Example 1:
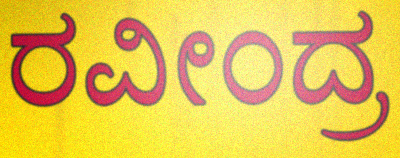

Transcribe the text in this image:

ರವೀಂದ್ರ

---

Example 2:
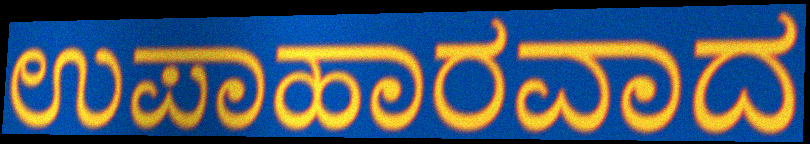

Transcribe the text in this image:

ಉಪಾಹಾರವಾದ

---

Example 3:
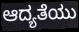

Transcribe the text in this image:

ಆದ್ಯತೆಯು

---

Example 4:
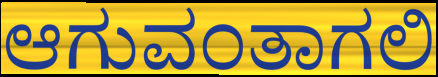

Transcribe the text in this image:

ಆಗುವಂತಾಗಲಿ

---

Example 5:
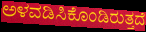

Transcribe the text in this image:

ಅಳವಡಿಸಿಕೊಂಡಿರುತ್ತದೆ